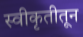
स्वीकृतीतून